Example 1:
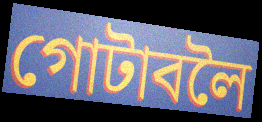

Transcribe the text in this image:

গোটাবলৈ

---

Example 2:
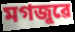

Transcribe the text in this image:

মগজুৱে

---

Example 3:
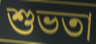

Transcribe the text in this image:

শুভতা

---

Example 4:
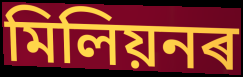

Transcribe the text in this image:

মিলিয়নৰ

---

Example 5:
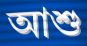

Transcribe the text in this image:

আশু